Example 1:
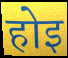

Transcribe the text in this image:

होइ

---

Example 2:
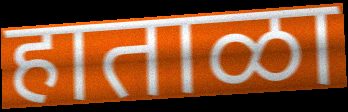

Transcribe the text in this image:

हाताळा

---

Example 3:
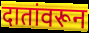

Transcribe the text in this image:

दातांवरून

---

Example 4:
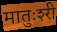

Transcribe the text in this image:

मातुःश्री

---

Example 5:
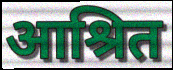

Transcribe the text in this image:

आश्रित